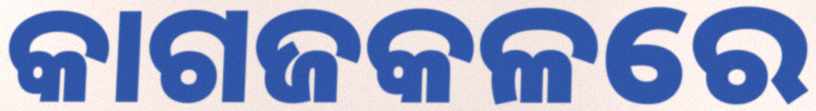
କାଗଜକଳରେ